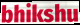
bhikshu